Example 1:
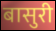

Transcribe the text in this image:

बासुरी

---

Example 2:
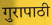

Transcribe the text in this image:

गुरापाठी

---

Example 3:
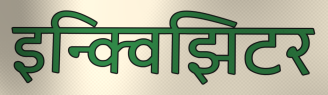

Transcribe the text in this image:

इन्क्विझिटर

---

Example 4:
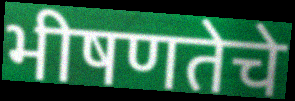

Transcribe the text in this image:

भीषणतेचे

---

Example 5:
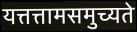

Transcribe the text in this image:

यत्तत्तामसमुच्यते